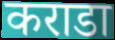
कराडा